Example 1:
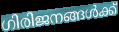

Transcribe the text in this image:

ഗിരിജനങ്ങൾക്ക്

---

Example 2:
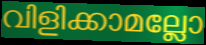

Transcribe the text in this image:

വിളിക്കാമല്ലോ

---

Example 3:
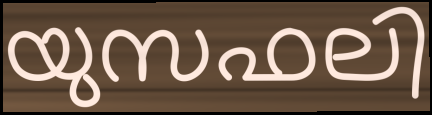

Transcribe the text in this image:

യുസഫലി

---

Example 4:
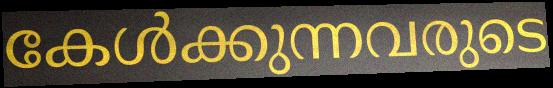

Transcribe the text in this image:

കേൾക്കുന്നവരുടെ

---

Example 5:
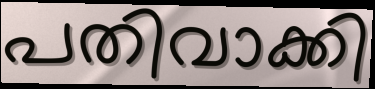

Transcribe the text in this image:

പതിവാക്കി